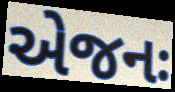
એજનઃ